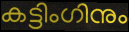
കട്ടിംഗിനും